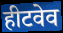
हीटवेव